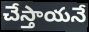
చేస్తాయనే